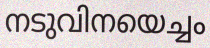
നടുവിനയെച്ചം